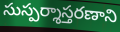
సుస్పర్శాస్తరణాని